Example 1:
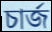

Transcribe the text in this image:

চাৰ্জ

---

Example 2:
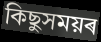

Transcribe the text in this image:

কিছুসময়ৰ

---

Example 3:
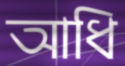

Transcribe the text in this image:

আধি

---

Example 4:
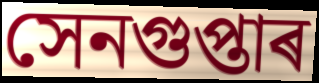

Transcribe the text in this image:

সেনগুপ্তাৰ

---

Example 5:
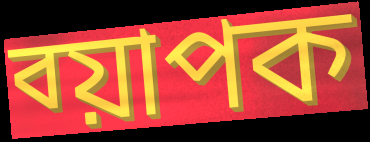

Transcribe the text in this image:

ব্য়াপক